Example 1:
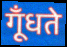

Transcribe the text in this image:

गूँधते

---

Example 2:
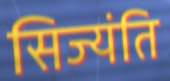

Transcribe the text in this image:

सिज्यंति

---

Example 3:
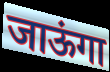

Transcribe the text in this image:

जाऊंगा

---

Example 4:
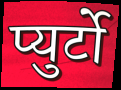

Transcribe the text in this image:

प्युर्टो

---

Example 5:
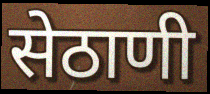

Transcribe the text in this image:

सेठाणी